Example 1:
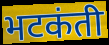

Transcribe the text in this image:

भटकंती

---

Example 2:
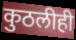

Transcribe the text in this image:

कुठलीही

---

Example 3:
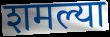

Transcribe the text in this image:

शमल्या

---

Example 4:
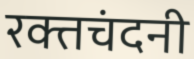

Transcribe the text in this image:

रक्तचंदनी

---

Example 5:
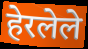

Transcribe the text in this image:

हेरलेले